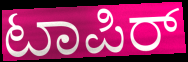
ಟಾಪಿರ್